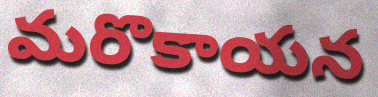
మరొకాయన